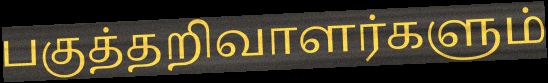
பகுத்தறிவாளர்களும்